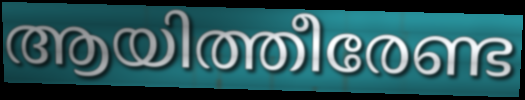
ആയിത്തീരേണ്ട